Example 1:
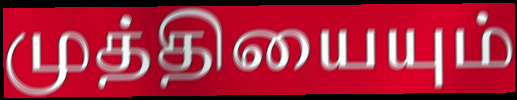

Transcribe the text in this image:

முத்தியையும்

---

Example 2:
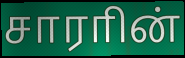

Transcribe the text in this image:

சாரரின்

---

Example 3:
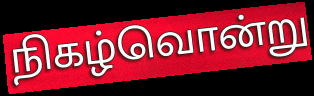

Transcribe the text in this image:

நிகழ்வொன்று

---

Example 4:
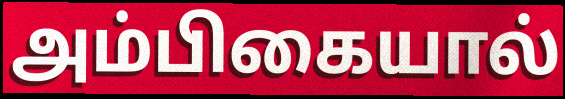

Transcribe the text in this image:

அம்பிகையால்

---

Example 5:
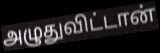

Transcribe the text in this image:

அழுதுவிட்டான்